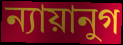
ন্যায়ানুগ